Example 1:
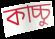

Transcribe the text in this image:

কাচ্চু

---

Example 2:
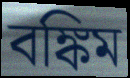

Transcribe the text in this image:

বঙ্কিম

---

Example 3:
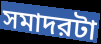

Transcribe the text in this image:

সমাদরটা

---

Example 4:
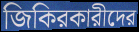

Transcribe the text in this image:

জিকিরকারীদের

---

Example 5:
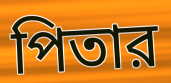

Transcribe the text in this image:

পিতার